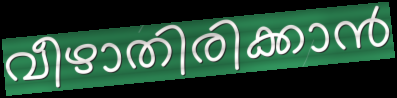
വീഴാതിരിക്കാൻ